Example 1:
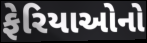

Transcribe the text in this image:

ફેરિયાઓનો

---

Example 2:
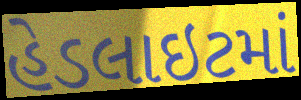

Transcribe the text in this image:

હેડલાઇટમાં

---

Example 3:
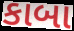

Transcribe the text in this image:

કાબા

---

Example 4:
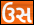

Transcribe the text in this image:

ઉસ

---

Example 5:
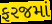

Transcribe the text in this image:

ફરજમાં